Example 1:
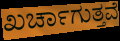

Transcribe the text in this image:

ಖರ್ಚಾಗುತ್ತವೆ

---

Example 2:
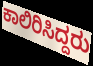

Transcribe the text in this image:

ಕಾಲಿರಿಸಿದ್ದರು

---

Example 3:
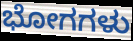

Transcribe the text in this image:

ಭೋಗಗಳು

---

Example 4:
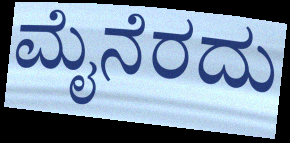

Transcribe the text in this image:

ಮೈನೆರದು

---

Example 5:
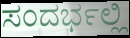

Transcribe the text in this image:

ಸಂದರ್ಭಲ್ಲಿ